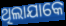
ଥିଲାଯାକେ